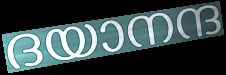
ദയാനന്ദ